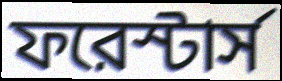
ফরেস্টার্স